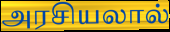
அரசியலால்